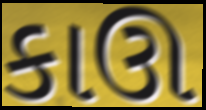
કાઊ